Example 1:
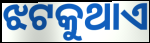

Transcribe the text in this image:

ଝଟକୁଥାଏ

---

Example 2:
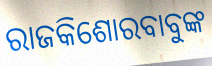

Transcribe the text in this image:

ରାଜକିଶୋରବାବୁଙ୍କ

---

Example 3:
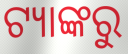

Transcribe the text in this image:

ଟ୍ୟାଙ୍କରୁ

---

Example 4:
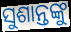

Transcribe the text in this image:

ସୁଶାନ୍ତଙ୍କୁ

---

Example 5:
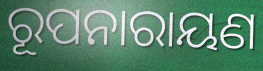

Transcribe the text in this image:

ରୂପନାରାୟଣ